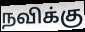
நவிக்கு